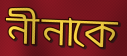
নীনাকে